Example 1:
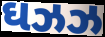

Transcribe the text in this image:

ઘઝઝ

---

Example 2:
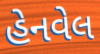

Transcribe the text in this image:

હેનવેલ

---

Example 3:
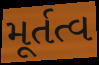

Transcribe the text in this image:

મૂર્તત્વ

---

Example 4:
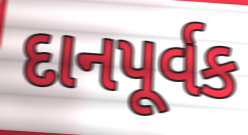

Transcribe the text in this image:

દાનપૂર્વક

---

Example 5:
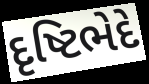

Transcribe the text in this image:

દૃષ્ટિભેદે